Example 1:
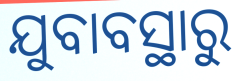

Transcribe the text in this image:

ଯୁବାବସ୍ଥାରୁ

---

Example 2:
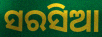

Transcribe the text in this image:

ସରସିଆ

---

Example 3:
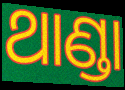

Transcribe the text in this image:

ଥାଣ୍ଡା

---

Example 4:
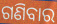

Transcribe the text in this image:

ଗଣିବାର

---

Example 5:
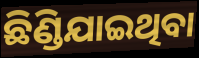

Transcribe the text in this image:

ଛିଣ୍ଡିଯାଇଥିବା